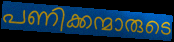
പണിക്കന്മാരുടെ